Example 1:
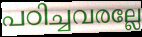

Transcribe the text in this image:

പഠിച്ചവരല്ലേ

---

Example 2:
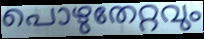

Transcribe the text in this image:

പൊഴുതേറ്റവും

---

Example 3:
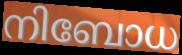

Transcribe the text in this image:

നിബോധ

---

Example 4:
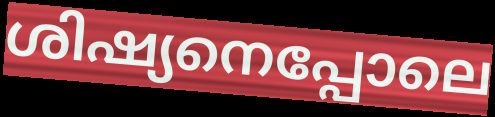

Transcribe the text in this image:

ശിഷ്യനെപ്പോലെ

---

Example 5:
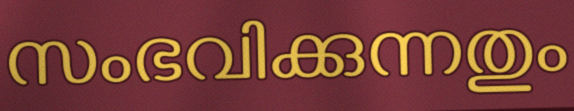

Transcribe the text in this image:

സംഭവിക്കുന്നതും